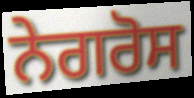
ਨੇਗਰੋਸ